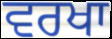
ਵਰਖਾ